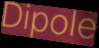
Dipole